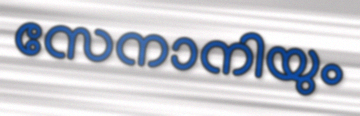
സേനാനിയും